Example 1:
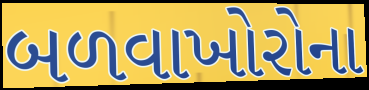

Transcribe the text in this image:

બળવાખોરોના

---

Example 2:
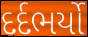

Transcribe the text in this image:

દર્દભર્યો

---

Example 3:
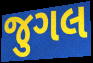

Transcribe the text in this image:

જુગલ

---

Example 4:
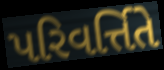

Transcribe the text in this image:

પરિવર્ત્તિતે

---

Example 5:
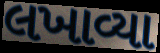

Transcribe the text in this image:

લખાવ્યા